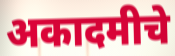
अकादमीचे